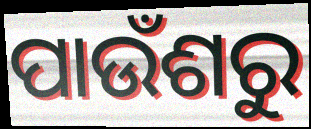
ପାଉଁଶରୁ